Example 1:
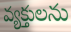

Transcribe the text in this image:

వ్యక్తులను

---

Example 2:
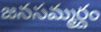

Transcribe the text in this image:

జనసమ్మర్దం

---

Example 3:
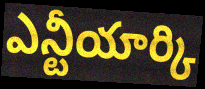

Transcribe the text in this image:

ఎన్టీయార్కి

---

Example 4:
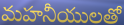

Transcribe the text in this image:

మహనీయులతో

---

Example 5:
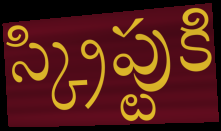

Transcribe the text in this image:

స్క్రిప్టుకి